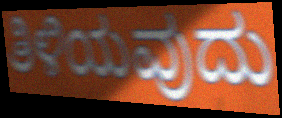
ತಿಳಿಯವುದು